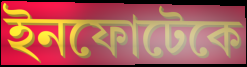
ইনফোটেকে